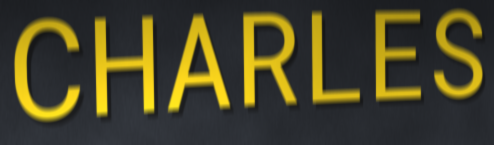
CHARLES